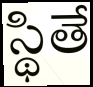
స్థితే